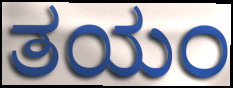
ತಯಂ